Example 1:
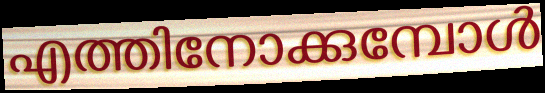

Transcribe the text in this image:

എത്തിനോക്കുമ്പോൾ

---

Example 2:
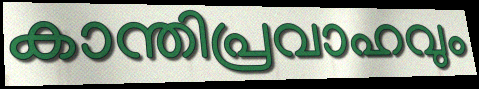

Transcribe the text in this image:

കാന്തിപ്രവാഹവും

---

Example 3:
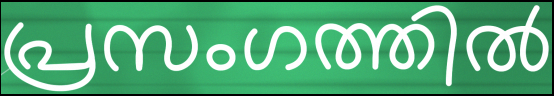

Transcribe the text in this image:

പ്രസംഗത്തിൽ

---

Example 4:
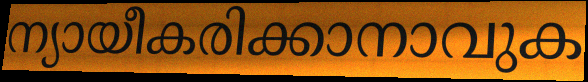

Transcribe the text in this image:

ന്യായീകരിക്കാനാവുക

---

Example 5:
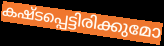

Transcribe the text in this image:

കഷ്ടപ്പെട്ടിരിക്കുമോ